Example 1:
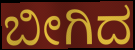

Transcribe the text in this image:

ಬೀಗಿದ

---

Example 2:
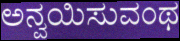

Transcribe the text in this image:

ಅನ್ವಯಿಸುವಂಥ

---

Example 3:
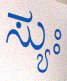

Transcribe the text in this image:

ಸ್ಯುಃ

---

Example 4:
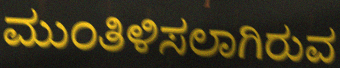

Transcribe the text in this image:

ಮುಂತಿಳಿಸಲಾಗಿರುವ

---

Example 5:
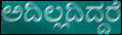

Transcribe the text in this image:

ಅದಿಲ್ಲದಿದ್ದರೆ